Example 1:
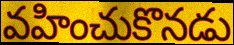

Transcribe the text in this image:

వహించుకొనడు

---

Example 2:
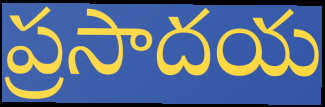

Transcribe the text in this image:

ప్రసాదయ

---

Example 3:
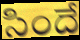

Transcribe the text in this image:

సిందే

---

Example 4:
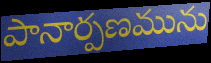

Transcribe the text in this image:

పానార్పణమును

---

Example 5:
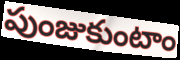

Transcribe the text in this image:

పుంజుకుంటాం